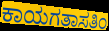
ಕಾಯಗತಾಸತಿಂ